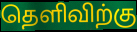
தெளிவிற்கு